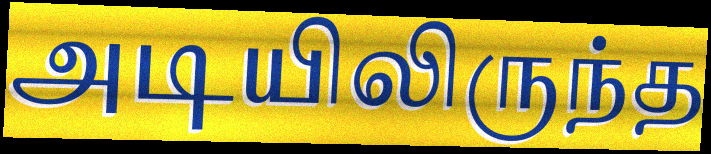
அடியிலிருந்த